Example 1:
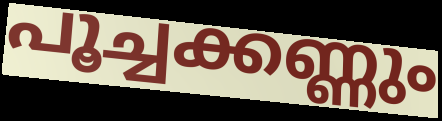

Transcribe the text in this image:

പൂച്ചക്കണ്ണും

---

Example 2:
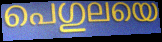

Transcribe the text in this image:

പെഗുലയെ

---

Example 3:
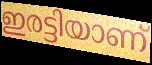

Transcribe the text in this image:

ഇരട്ടിയാണ്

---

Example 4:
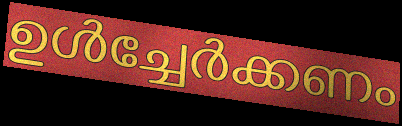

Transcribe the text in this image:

ഉൾച്ചേർക്കണം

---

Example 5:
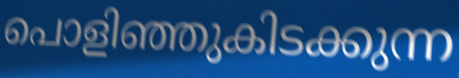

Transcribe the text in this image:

പൊളിഞ്ഞുകിടക്കുന്ന